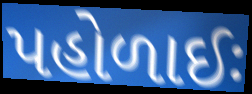
પહોળાઈઃ